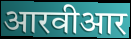
आरवीआर